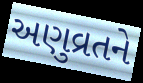
અણુવ્રતને